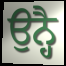
ਉਨ੍ਹੈ